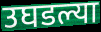
उघडल्या